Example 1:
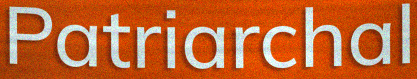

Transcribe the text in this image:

Patriarchal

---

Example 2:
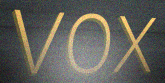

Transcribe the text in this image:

vox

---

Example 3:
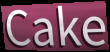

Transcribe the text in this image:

Cake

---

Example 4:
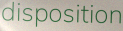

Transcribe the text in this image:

disposition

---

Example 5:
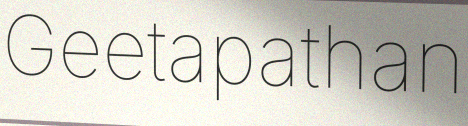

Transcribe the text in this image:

Geetapathan